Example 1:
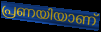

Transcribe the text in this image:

പ്രണയിയാണ്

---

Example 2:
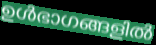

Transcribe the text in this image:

ഉൾഭാഗങ്ങളിൽ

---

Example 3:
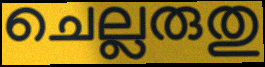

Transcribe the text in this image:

ചെല്ലരുതു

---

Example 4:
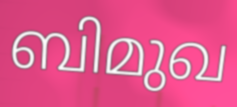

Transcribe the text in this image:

ബിമുഖ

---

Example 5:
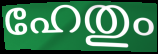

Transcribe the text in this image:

ഹേതും